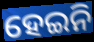
ହେଇନି